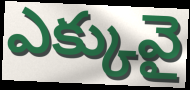
ఎక్కువై